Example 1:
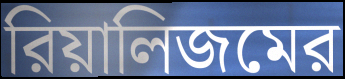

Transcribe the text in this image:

রিয়ালিজমের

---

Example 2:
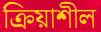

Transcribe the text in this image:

ক্রিয়াশীল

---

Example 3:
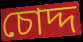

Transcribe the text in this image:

চোদ্দ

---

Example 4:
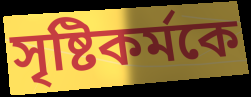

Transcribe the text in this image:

সৃষ্টিকর্মকে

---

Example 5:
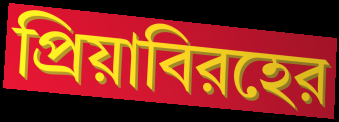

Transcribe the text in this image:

প্রিয়াবিরহের